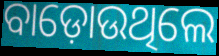
ବାଡ଼ୋଉଥିଲେ